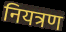
नियत्रण